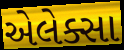
એલેક્સા